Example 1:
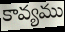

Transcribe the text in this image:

కావ్యము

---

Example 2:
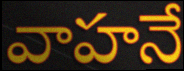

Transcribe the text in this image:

వాహనే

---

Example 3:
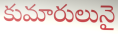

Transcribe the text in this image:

కుమారులునై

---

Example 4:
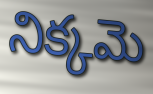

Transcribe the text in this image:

నిక్కమె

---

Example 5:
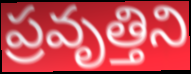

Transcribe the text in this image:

ప్రవృత్తిని